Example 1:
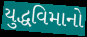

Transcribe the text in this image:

યુદ્ધવિમાનો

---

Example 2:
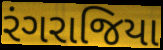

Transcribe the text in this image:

રંગરાજિયા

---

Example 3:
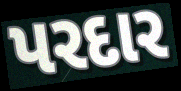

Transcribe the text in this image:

પરદાર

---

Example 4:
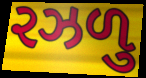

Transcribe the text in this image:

રઝળુ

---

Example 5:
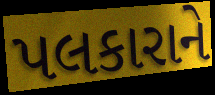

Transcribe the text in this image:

પલકારાને